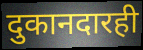
दुकानदारही